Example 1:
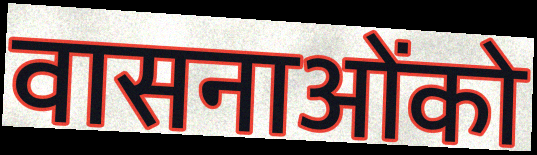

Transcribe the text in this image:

वासनाओंको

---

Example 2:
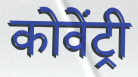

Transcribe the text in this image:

कोवेंट्री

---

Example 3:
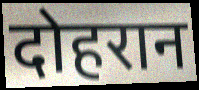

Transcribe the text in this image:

दोहरान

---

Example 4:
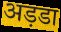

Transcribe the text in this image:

अड़डा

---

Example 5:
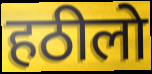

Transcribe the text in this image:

हठीलो